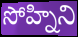
సోహ్నిని